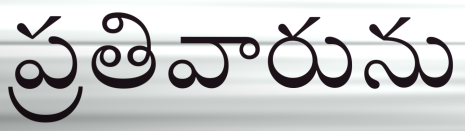
ప్రతివారును